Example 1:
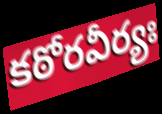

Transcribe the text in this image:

కఠోరవీర్యః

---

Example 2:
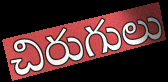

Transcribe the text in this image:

చిరుగులు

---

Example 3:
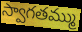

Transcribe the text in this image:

స్వాగతమ్ము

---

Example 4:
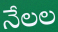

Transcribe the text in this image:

నేలల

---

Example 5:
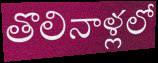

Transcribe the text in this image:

తొలినాళ్లలో